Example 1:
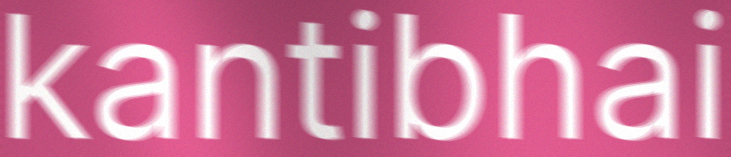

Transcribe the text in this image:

kantibhai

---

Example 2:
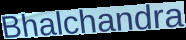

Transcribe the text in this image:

Bhalchandra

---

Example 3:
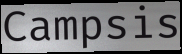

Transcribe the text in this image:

Campsis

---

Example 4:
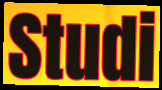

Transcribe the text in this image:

Studi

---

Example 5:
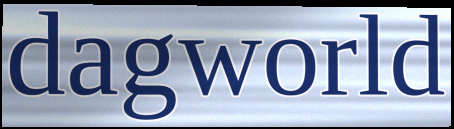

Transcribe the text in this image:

dagworld